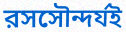
রসসৌন্দর্যই